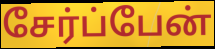
சேர்ப்பேன்